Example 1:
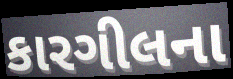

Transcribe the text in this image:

કારગીલના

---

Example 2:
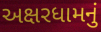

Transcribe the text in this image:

અક્ષરધામનું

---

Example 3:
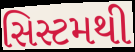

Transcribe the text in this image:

સિસ્ટમથી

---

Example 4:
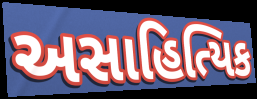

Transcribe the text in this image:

અસાહિત્યિક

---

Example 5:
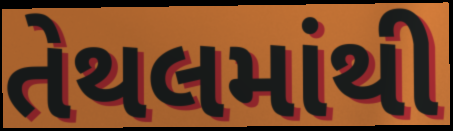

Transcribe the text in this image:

તેથલમાંથી